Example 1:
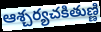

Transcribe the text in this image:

ఆశ్చర్యచకితుణ్ణి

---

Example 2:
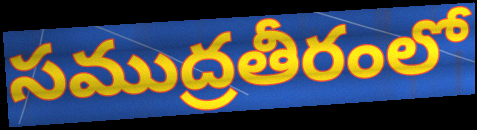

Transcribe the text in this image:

సముద్రతీరంలో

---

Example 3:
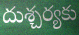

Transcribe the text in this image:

దుశ్చర్యకు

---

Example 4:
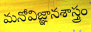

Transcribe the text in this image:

మనోవిజ్ఞానశాస్త్రం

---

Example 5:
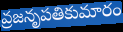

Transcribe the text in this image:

వ్రజనృపతికుమారం